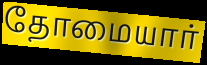
தோமையார்